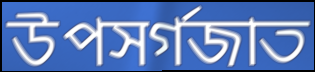
উপসর্গজাত